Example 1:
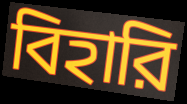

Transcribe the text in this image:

বিহারি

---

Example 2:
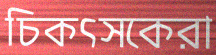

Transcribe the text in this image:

চিকৎসকেরা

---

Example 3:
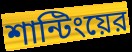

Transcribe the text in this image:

শান্টিংয়ের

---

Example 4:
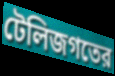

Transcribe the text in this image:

টেলিজগতের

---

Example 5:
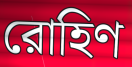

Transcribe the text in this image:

রোহিণ